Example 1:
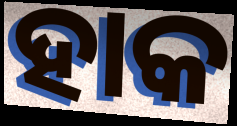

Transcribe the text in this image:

ହାକ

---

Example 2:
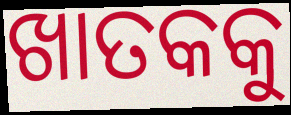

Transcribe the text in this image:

ଖାତକକୁ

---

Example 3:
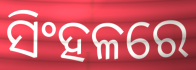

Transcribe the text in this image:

ସିଂହଳରେ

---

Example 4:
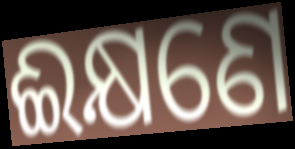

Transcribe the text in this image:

ଈକ୍ଷଣେ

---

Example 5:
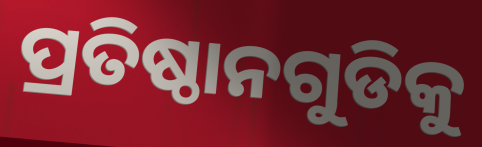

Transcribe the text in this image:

ପ୍ରତିଷ୍ଠାନଗୁଡିକୁ